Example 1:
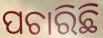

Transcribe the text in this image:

ପଚାରିଛି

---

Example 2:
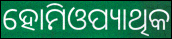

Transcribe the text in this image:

ହୋମିଓପ୍ୟାଥିକ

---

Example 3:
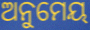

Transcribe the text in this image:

ଅନୁମେୟ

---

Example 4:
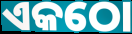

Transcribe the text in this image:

ଏକଠୋ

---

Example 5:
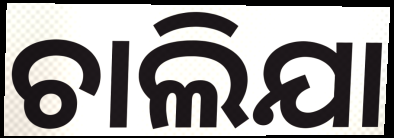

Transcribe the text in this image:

ଚାଲିଯା